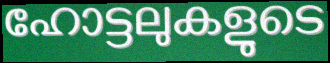
ഹോട്ടലുകളുടെ